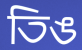
তিঙ